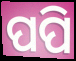
ପପି